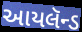
આયલૅન્ડ